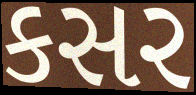
કસર